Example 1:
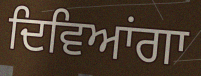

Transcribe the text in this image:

ਦਿਵਿਆਂਗਾ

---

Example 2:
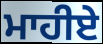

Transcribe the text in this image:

ਮਾਹੀਏ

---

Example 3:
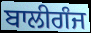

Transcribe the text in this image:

ਬਾਲੀਗੰਜ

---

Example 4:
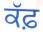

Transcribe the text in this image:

ਕੱਫ਼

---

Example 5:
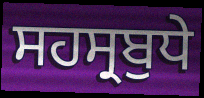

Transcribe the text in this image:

ਸਹਸ੍ਰਬੁਧੇ